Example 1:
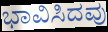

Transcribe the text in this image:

ಭಾವಿಸಿದವು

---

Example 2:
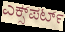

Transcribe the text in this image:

ಎಕ್ಸ್‌ಪರ್ಟ್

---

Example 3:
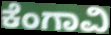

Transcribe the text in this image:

ಕೆಂಗಾವಿ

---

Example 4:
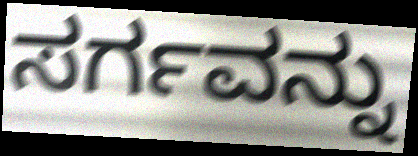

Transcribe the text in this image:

ಸರ್ಗವನ್ನು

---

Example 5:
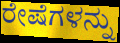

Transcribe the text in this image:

ರೇಷೆಗಳನ್ನು